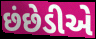
છંછેડીએ